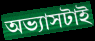
অভ্যাসটাই